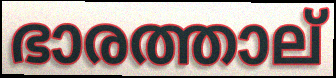
ഭാരത്താല്